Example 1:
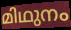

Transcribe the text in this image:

മിഥുനം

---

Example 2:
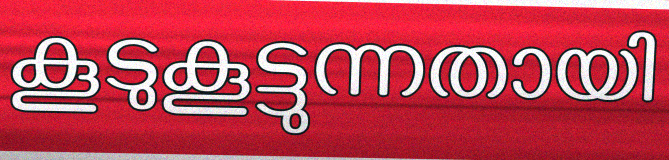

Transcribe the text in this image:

കൂടുകൂട്ടുന്നതായി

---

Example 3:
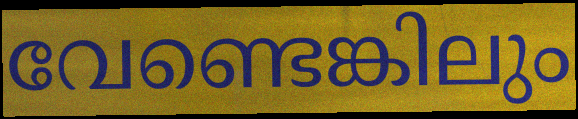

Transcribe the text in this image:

വേണ്ടെങ്കിലും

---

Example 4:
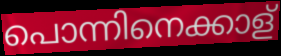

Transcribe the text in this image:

പൊന്നിനെക്കാള്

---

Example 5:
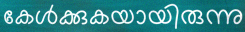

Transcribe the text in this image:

കേൾക്കുകയായിരുന്നു